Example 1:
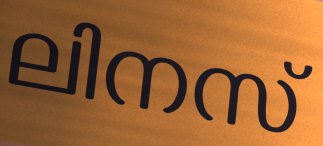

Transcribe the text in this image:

ലിനസ്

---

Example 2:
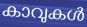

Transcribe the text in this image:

കാവുകൾ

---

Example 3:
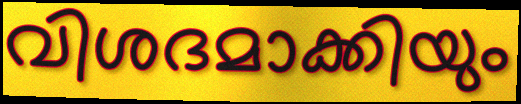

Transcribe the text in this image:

വിശദമാക്കിയും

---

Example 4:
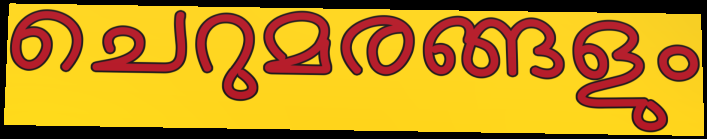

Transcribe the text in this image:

ചെറുമരങ്ങളും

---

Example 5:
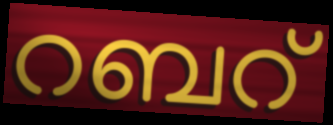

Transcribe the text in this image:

റബറ്